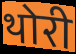
थोरी